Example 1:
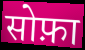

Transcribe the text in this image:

सोफ़ा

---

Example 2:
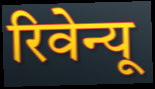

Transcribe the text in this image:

रिवेन्यू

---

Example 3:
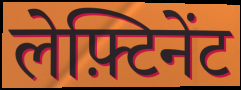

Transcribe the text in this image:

लेफ़्टिनेंट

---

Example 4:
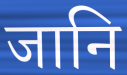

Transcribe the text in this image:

जानि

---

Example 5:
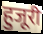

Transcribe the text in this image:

हुजूरी